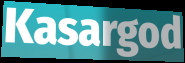
Kasargod